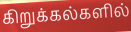
கிறுக்கல்களில்